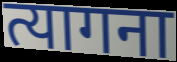
त्यागना